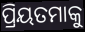
ପ୍ରିୟତମାକୁ